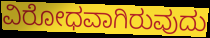
ವಿರೋಧವಾಗಿರುವುದು